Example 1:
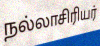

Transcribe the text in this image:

நல்லாசிரியர்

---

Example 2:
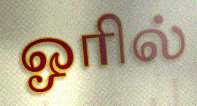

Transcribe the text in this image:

ஓரில்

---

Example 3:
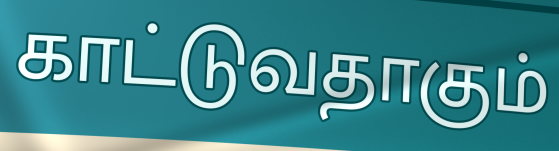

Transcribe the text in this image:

காட்டுவதாகும்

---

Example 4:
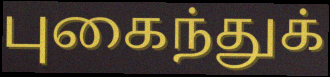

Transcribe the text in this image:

புகைந்துக்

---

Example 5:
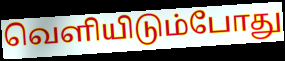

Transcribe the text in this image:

வெளியிடும்போது